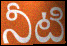
నీటి